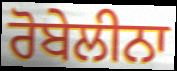
ਰੋਬੇਲੀਨਾ